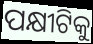
ପକ୍ଷୀଟିକୁ